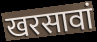
खरसावां